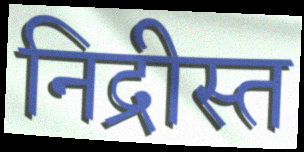
निद्रीस्त